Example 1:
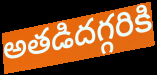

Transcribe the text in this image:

అతడిదగ్గరికి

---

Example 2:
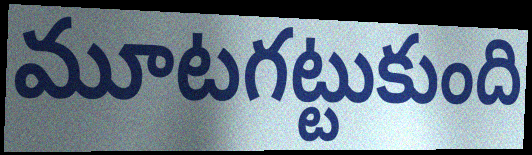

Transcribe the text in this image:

మూటగట్టుకుంది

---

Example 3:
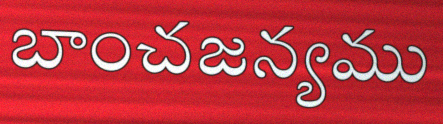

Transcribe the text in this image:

బాంచజన్యము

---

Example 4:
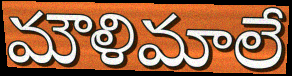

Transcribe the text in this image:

మౌళిమాలే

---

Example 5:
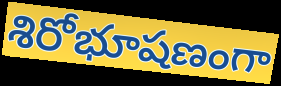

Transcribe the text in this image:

శిరోభూషణంగా